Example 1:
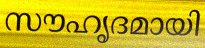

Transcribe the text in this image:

സൗഹൃദമായി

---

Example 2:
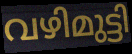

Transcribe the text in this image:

വഴിമുട്ടി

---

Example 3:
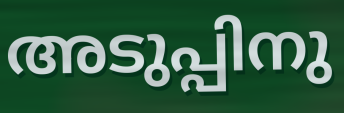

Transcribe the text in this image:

അടുപ്പിനു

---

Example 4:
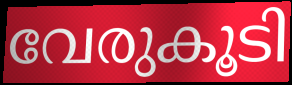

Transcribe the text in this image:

വേരുകൂടി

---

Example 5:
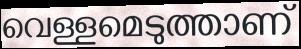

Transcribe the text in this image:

വെള്ളമെടുത്താണ്